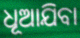
ଧୂଆଯିବା